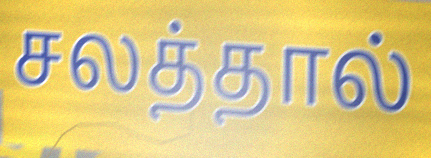
சலத்தால்